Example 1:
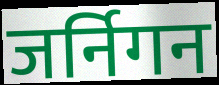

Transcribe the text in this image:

जर्निगन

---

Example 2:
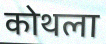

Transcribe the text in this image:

कोथला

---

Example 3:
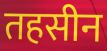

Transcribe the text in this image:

तहसीन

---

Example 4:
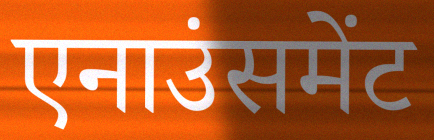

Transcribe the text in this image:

एनाउंसमेंट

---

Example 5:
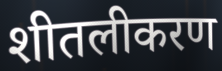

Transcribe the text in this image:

शीतलीकरण